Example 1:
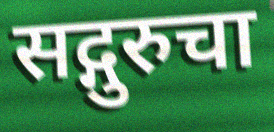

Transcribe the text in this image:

सद्गुरुचा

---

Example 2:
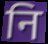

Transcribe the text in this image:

नि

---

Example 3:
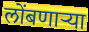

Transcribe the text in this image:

लोंबणार्‍या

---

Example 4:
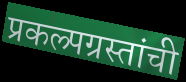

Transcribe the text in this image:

प्रकल्पग्रस्तांची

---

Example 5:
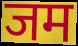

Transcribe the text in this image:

जम